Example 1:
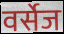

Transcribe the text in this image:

वर्सेज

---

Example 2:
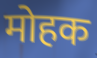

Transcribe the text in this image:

मोहक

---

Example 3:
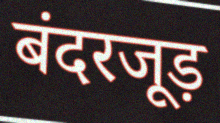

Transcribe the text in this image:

बंदरजूड़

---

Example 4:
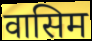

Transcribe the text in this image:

वासिम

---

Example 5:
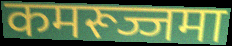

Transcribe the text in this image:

कमरूज्जमा